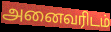
அனைவரிடம்